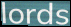
lords